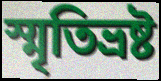
স্মৃতিভ্রষ্ট